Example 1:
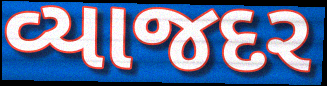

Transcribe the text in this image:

વ્યાજદર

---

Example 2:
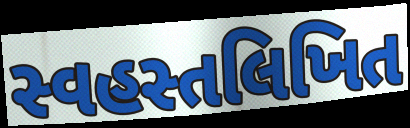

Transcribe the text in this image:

સ્વહસ્તલિખિત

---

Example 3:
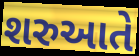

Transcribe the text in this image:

શરુઆતે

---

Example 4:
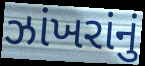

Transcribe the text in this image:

ઝાંખરાંનું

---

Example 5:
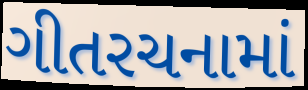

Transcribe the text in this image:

ગીતરચનામાં